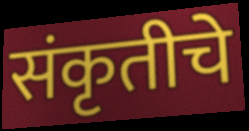
संकृतीचे